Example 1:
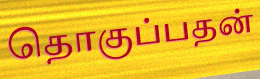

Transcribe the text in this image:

தொகுப்பதன்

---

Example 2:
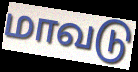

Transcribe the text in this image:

மாவடு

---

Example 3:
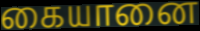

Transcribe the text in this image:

கையானை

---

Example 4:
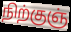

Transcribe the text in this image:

நிற்குஞ்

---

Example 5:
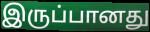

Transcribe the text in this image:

இருப்பானது